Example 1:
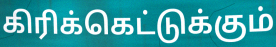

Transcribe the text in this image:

கிரிக்கெட்டுக்கும்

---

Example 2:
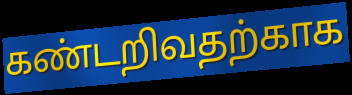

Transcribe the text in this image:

கண்டறிவதற்காக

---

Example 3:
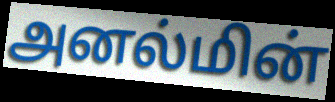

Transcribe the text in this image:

அனல்மின்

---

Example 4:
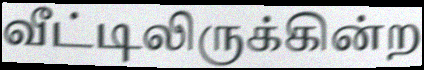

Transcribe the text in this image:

வீட்டிலிருக்கின்ற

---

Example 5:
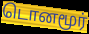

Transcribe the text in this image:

டொனமூர்